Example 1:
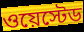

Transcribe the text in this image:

ওয়েস্টেড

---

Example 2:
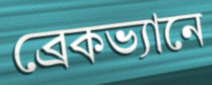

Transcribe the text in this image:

ব্রেকভ্যানে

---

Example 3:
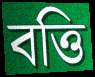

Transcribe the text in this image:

বত্তি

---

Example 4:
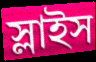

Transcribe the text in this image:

স্লাইস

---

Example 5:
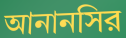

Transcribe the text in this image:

আনানসির